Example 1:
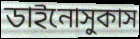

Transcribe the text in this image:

ডাইনোসুকাস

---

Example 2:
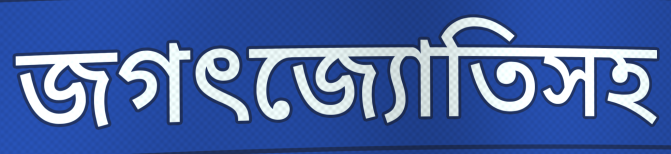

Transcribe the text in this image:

জগৎজ্যোতিসহ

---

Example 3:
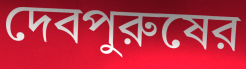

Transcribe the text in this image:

দেবপুরুষের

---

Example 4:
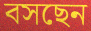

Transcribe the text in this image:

বসছেন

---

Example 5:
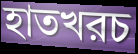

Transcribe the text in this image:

হাতখরচ